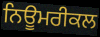
ਨਿਊਮਰੀਕਲ